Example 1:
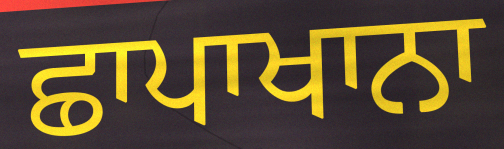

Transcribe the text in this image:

ਛਾਪਾਖਾਨਾ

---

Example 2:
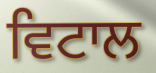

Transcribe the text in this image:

ਵਿਟਾਲ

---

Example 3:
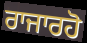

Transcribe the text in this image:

ਰਾਜਾਰਹੋ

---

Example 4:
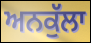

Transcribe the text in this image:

ਅਨਕੁੱਲਾ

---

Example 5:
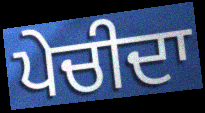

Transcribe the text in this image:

ਪੇਚੀਦਾ